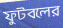
ফুটবলের